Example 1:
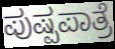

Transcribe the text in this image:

ಪುಷ್ಪಪಾತ್ರೆ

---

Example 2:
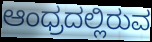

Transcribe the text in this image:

ಆಂಧ್ರದಲ್ಲಿರುವ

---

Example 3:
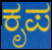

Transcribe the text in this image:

ಕೃಪ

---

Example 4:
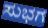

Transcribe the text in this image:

ಸುಭಗ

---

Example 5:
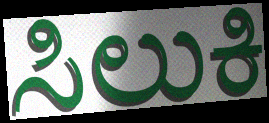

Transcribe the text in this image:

ಸಿಲುಕಿ